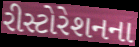
રીસ્ટોરેશનના